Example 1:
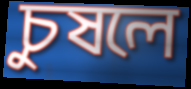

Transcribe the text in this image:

চুষলে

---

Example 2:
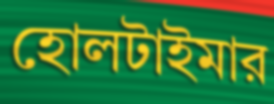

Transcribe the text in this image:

হোলটাইমার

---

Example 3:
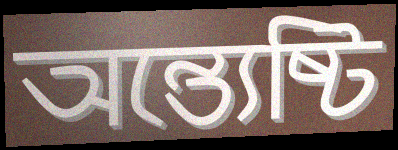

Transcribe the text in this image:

অন্ত্যেষ্টি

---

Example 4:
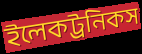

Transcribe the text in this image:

ইলেকট্রনিকস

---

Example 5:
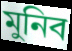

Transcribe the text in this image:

মুনিব